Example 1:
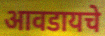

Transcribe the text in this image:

आवडायचे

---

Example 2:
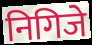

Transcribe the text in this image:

निगिजे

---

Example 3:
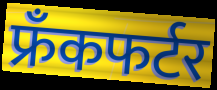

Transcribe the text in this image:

फ्रँकफर्टर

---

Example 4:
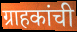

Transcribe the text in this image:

ग्राहकांची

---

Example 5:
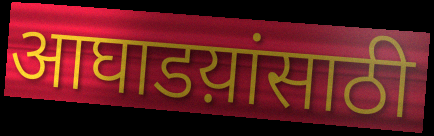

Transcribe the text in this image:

आघाडय़ांसाठी